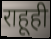
राहूही